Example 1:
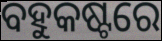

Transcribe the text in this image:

ବହୁକଷ୍ଟରେ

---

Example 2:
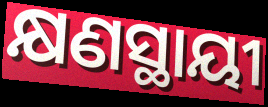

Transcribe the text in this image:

କ୍ଷଣସ୍ଥାୟୀ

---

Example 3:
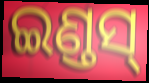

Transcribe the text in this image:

ଇଣ୍ଡସ୍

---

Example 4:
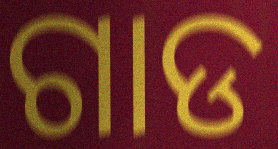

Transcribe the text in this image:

ଗାଡ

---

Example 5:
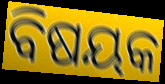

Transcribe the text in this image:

ବିଷୟକ